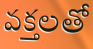
వక్తలతో